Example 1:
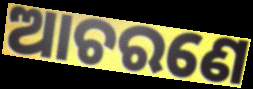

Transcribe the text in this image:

ଆଚରଣେ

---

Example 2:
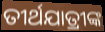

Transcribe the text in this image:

ତୀର୍ଥଯାତ୍ରୀଙ୍କ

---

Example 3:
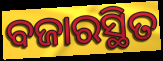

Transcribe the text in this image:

ବଜାରସ୍ଥିତ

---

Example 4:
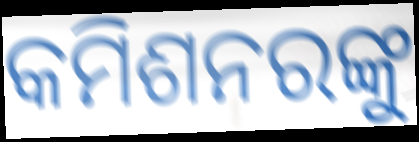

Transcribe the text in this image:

କମିଶନରଙ୍କୁ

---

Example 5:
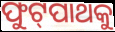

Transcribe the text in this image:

ଫୁଟ୍‌ପାଥକୁ